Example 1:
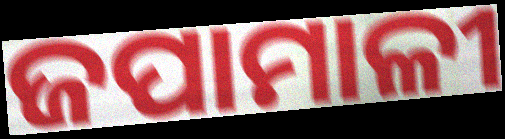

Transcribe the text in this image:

ଜପାମାଳୀ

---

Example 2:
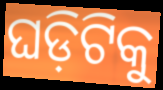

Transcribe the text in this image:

ଘଡ଼ିଟିକୁ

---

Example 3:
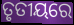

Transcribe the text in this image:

ତୃତୀୟରେ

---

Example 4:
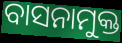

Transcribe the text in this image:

ବାସନାମୁକ୍ତ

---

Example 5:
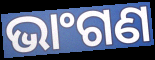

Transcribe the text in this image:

ଭାଂଗଣ